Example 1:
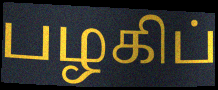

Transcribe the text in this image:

பழகிப்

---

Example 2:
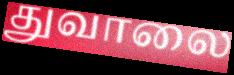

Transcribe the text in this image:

துவாலை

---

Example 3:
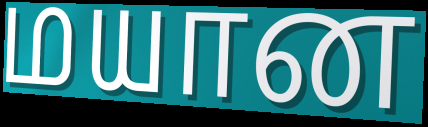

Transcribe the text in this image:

மயான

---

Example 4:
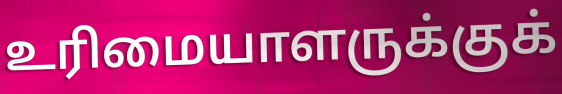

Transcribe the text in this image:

உரிமையாளருக்குக்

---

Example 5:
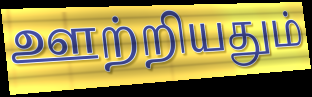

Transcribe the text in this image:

ஊற்றியதும்